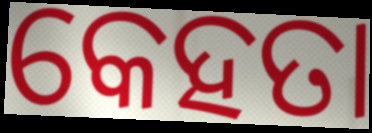
କେହତା